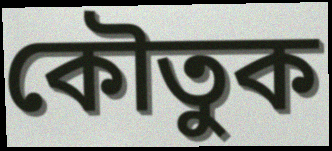
কৌতুক